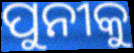
ପୁନୀକୁ